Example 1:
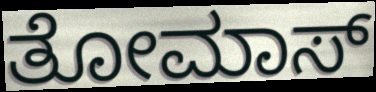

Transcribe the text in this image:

ತೋಮಾಸ್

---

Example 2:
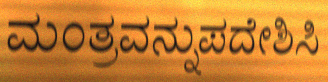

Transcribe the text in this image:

ಮಂತ್ರವನ್ನುಪದೇಶಿಸಿ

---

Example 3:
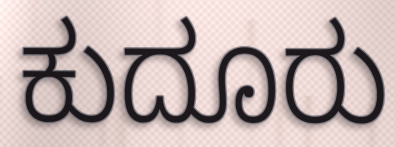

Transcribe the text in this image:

ಕುದೂರು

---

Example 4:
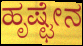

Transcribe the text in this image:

ಹೃಷ್ಟೇನ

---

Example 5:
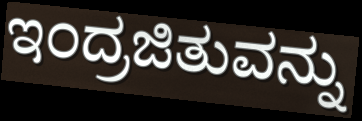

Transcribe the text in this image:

ಇಂದ್ರಜಿತುವನ್ನು